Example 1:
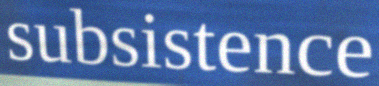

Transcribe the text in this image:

subsistence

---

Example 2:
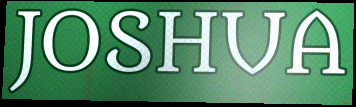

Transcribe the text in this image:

JOSHUA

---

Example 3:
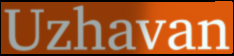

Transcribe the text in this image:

Uzhavan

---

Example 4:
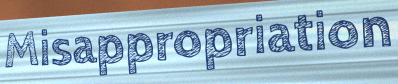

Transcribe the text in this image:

Misappropriation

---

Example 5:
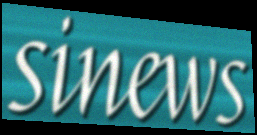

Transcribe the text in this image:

sinews